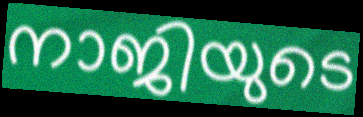
നാജിയുടെ